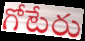
గోటేరు